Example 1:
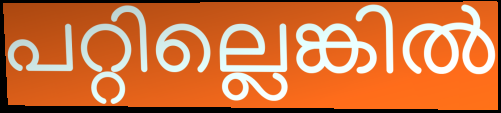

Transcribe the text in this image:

പറ്റില്ലെങ്കിൽ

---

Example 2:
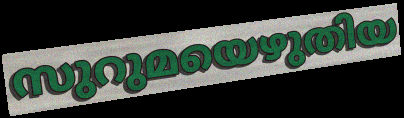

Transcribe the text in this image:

സുറുമയെഴുതിയ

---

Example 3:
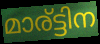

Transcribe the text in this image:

മാര്ട്ടിന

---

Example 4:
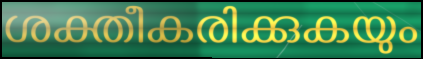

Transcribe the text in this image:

ശക്തീകരിക്കുകയും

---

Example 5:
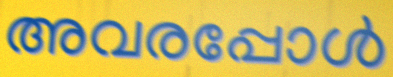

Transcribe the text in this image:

അവരപ്പോൾ